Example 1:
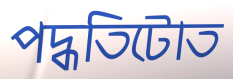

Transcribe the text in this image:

পদ্ধতিটোত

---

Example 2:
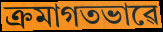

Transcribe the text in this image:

ক্ৰমাগতভাৱে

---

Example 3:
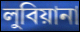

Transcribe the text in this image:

লুবিয়ানা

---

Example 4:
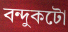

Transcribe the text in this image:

বন্দুকটো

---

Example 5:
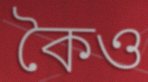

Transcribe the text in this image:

কৈও